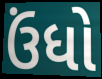
ઉંધો